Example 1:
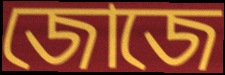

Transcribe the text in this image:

জোজে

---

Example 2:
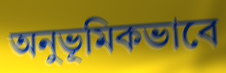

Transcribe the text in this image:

অনুভূমিকভাবে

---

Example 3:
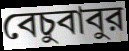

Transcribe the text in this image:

বেচুবাবুর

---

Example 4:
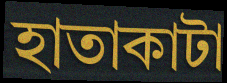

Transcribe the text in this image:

হাতাকাটা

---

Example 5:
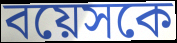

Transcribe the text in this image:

বয়েসকে